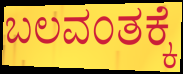
ಬಲವಂತಕ್ಕೆ